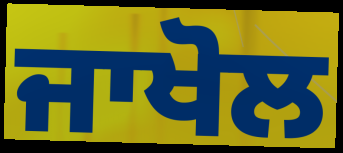
ਜਾਖੋਲ